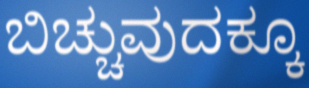
ಬಿಚ್ಚುವುದಕ್ಕೂ